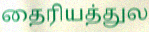
தைரியத்துல